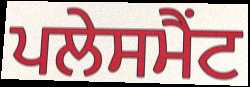
ਪਲੇਸਮੈਂਟ